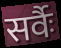
सर्वैः